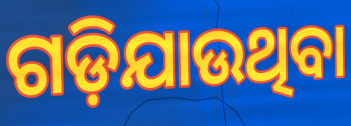
ଗଡ଼ିଯାଉଥିବା